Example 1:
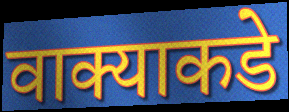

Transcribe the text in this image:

वाक्याकडे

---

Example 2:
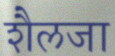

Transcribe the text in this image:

शैलजा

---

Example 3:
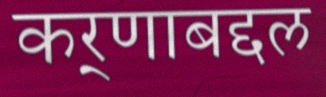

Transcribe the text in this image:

कर्णाबद्दल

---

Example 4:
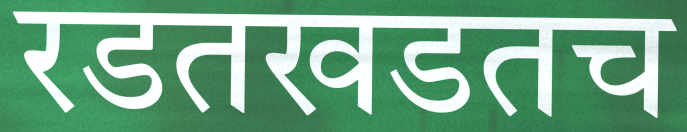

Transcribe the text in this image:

रडतखडतच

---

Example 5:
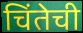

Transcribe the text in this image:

चिंतेची